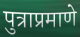
पुत्राप्रमाणे